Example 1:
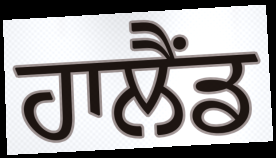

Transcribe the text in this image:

ਹਾਲੈਂਡ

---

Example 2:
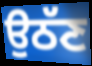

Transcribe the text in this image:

ਉਠੱਣ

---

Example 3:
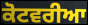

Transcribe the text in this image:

ਕੋਟਵਰੀਆ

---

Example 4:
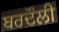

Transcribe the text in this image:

ਬਰਦੌਲੀ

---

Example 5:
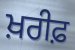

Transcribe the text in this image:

ਖ਼ਰੀਫ਼